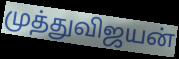
முத்துவிஜயன்